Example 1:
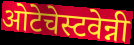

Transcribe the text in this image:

ओटेचेस्टवेन्नी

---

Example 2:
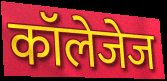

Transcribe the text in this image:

कॉलेजेज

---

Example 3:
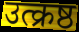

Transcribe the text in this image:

उत्क्रष्ठ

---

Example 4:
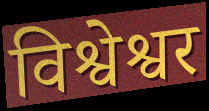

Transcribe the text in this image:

विश्वेश्वर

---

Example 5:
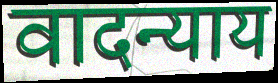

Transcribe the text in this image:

वादन्याय